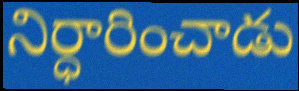
నిర్ధారించాడు